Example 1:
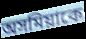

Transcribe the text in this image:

অসমিয়াকে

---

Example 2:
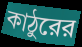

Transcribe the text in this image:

কাঠুরের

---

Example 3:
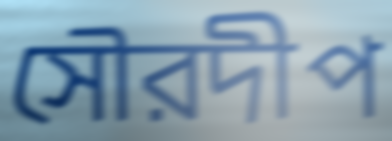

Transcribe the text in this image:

সৌরদীপ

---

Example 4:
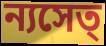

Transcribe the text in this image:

ন্যসেত্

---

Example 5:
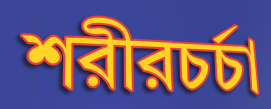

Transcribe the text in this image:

শরীরচর্চা